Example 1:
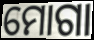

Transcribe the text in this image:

ମୋଗା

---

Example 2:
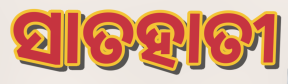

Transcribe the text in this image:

ସାତହାତୀ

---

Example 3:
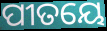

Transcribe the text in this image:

ପୀତୟେ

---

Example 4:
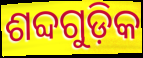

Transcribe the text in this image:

ଶବ୍ଦଗୁଡ଼ିକ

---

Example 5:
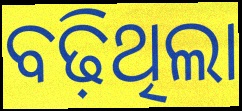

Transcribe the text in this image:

ବଢ଼ିଥିଲା